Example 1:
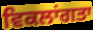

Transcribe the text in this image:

ਵਿਕਲਾਂਗਤਾ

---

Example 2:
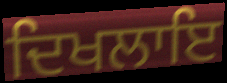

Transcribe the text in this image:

ਦਿਖਲਾਇ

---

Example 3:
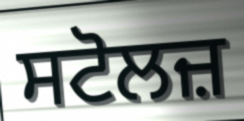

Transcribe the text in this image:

ਸਟੋਲਜ਼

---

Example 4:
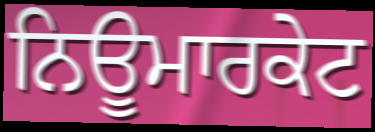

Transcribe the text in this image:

ਨਿਊਮਾਰਕੇਟ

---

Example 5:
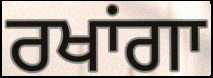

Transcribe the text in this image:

ਰਖਾਂਗਾ